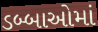
ડબ્બાઓમાં